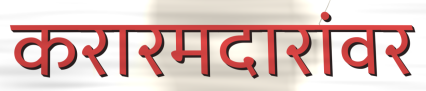
करारमदारांवर